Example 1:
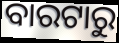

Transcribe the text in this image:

ବାରଟାରୁ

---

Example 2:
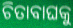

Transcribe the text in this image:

ଚିତାବାଘକୁ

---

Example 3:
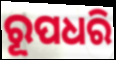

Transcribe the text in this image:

ରୂପଧରି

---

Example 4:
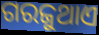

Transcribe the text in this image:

ଗରଜୁଥାଏ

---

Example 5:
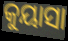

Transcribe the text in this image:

କୁୟାସା